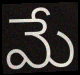
మే